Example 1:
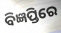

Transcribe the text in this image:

ବିଜ୍ଞପ୍ତିରେ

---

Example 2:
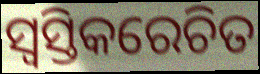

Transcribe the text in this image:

ସ୍ୱସ୍ତିକରେଚିତ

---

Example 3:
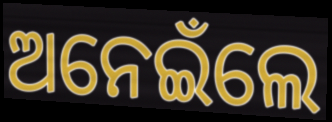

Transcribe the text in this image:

ଅନେଇଁଲେ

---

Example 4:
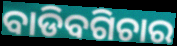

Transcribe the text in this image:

ବାଡିବଗିଚାର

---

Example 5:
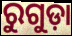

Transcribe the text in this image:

ରୁଗୁଡ଼ା